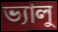
ভ্যালু